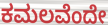
ಕಮಲವೆಂದೇ